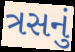
ત્રસનું